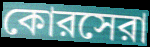
কোরসেরা